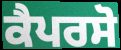
ਕੈਪਰਸੋ